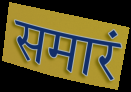
समारं